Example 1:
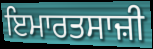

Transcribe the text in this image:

ਇਮਾਰਤਸਾਜ਼ੀ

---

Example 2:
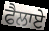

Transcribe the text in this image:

ਫੈਲਾਏ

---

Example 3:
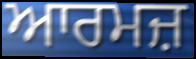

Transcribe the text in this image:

ਆਰਮਜ਼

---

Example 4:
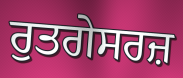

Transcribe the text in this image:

ਰੁਤਗੇਸਰਜ਼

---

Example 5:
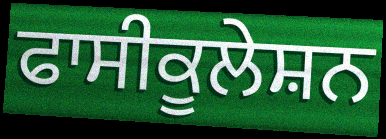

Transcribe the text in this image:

ਫਾਸੀਕੂਲੇਸ਼ਨ